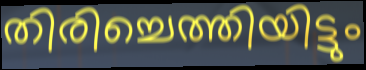
തിരിച്ചെത്തിയിട്ടും